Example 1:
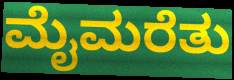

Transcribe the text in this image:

ಮೈಮರೆತು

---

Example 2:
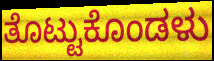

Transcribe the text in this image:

ತೊಟ್ಟುಕೊಂಡಳು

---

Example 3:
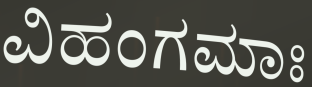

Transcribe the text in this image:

ವಿಹಂಗಮಾಃ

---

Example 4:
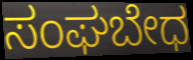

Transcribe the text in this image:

ಸಂಘಬೇಧ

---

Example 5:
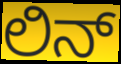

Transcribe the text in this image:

ಲಿನ್